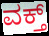
ವಕ್ತ್